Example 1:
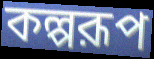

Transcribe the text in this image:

কল্পরূপ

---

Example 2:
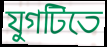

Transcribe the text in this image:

যুগটিতে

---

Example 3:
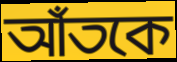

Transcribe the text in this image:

আঁতকে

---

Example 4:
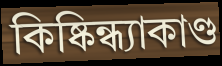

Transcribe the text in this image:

কিষ্কিন্ধ্যাকাণ্ড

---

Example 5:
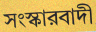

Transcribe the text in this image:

সংস্কারবাদী